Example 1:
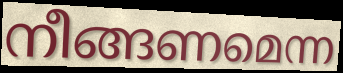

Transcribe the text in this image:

നീങ്ങണമെന്ന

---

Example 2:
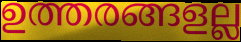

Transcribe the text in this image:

ഉത്തരങ്ങളല്ല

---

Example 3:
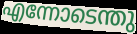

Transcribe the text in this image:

എന്നോടെന്തു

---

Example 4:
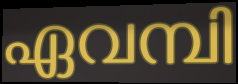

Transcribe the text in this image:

ഏവമ്പി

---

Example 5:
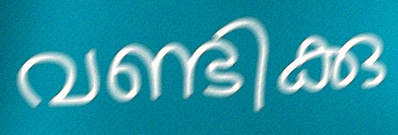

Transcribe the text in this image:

വണ്ടിക്കു